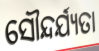
ସୌନ୍ଦର୍ଯ୍ୟତା